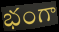
భంగా